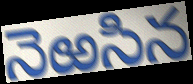
నెఱసిన